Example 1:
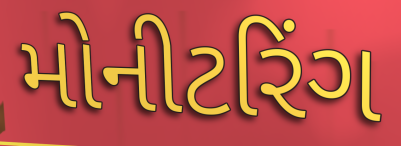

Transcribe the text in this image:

મોનીટરિંગ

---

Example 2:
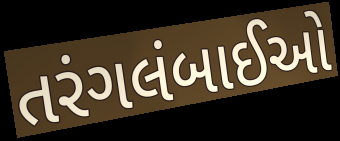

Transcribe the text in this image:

તરંગલંબાઈઓ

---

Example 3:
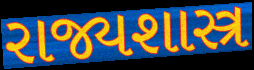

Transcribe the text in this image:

રાજ્યશાસ્ત્ર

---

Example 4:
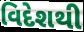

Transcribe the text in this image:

વિદેશથી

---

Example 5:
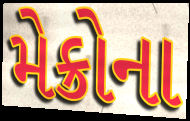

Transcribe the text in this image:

મેક્રોના